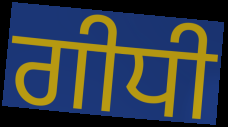
ਗੀਧੀ